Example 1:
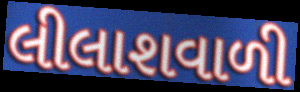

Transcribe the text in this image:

લીલાશવાળી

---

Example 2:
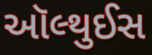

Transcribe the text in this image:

ઑલ્થુઈસ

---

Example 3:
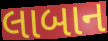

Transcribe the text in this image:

લાબાન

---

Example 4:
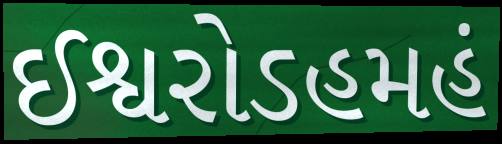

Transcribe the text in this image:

ઈશ્વરોઽહમહં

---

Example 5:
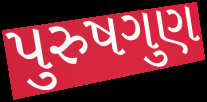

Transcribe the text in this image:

પુરુષગુણ